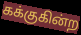
கக்குகின்ற